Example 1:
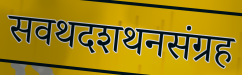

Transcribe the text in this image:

सवथदशथनसंग्रह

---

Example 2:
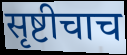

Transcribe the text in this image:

सृष्टीचाच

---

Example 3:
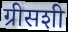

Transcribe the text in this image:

ग्रीसशी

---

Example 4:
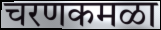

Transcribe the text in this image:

चरणकमळा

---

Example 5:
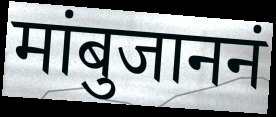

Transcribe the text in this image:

मांबुजाननं